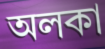
অলকা